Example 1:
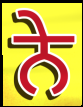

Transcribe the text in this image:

ਨੇ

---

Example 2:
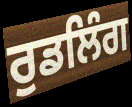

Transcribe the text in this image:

ਰੁਡਲਿੰਗ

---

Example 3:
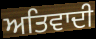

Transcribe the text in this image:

ਅਤਿਵਾਦੀ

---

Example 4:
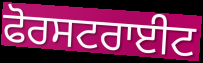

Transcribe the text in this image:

ਫੋਰਸਟਰਾਈਟ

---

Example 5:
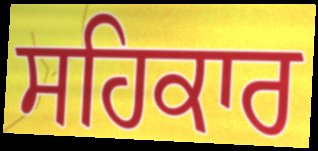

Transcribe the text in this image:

ਸਹਿਕਾਰ